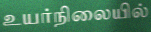
உயர்நிலையில்